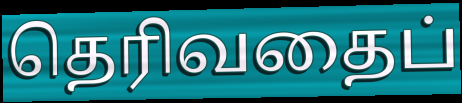
தெரிவதைப்